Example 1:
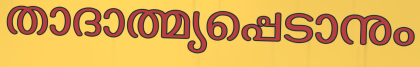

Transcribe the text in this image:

താദാത്മ്യപ്പെടാനും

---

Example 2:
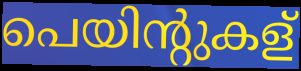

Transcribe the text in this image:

പെയിന്റുകള്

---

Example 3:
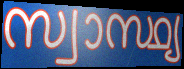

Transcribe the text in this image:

സ്വാസ്ഥ്യ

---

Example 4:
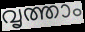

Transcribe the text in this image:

വൃത്താം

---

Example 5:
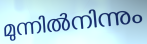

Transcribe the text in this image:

മുന്നിൽനിന്നും